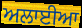
ਅਲਾਈਆ